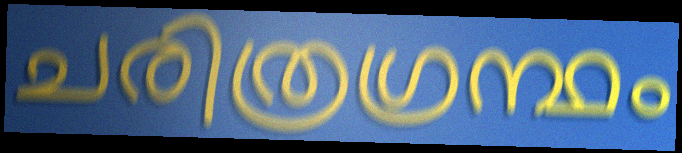
ചരിത്രഗ്രന്ഥം